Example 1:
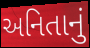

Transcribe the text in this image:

અનિતાનું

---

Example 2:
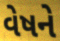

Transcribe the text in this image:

વેષને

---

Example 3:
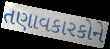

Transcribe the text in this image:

તણાવકારકોને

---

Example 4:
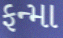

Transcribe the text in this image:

ફન્મા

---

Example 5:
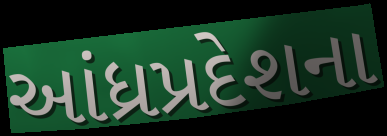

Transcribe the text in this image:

આંધ્રપ્રદેશના